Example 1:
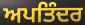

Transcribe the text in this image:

ਅਪਤਿੰਦਰ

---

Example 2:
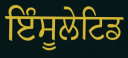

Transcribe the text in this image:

ਇੰਸੂਲੇਟਿਡ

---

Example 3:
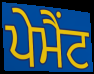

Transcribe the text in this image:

ਪੇਮੈਂਟ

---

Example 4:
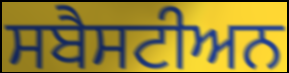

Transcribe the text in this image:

ਸਬੈਸਟੀਅਨ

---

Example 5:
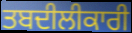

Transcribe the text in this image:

ਤਬਦੀਲੀਕਾਰੀ